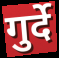
गुर्दे